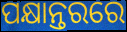
ପକ୍ଷାନ୍ତରରେ